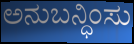
ಅನುಬನ್ಧಿಂಸು